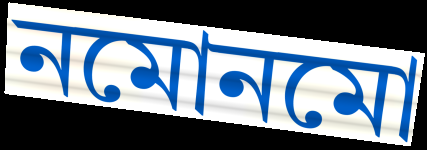
নমোনমো